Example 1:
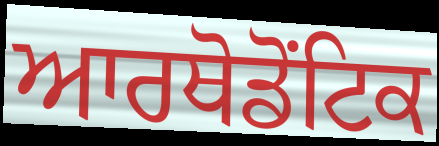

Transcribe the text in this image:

ਆਰਥੋਡੋਂਟਿਕ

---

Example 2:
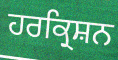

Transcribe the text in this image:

ਹਰਕ੍ਰਿਸ਼ਨ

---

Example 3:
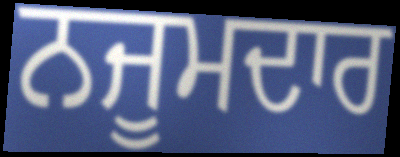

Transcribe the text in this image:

ਨਜੂਮਦਾਰ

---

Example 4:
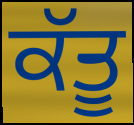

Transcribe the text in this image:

ਕੱਤੂ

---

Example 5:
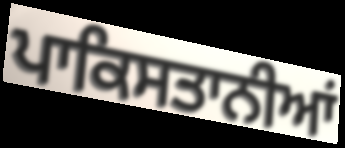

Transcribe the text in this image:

ਪਾਕਿਸਤਾਨੀਆਂ